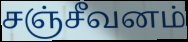
சஞ்சீவனம்